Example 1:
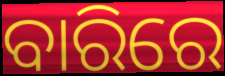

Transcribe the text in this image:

ବାରିରେ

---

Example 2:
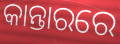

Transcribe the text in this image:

କାନ୍ତାରରେ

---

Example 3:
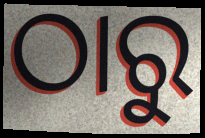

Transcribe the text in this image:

ଠାରୁ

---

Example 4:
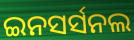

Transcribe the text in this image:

ଇନସର୍ସନଲ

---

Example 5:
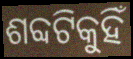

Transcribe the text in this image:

ଶବ୍ଦଟିକୁହିଁ